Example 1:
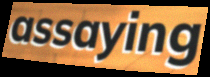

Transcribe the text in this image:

assaying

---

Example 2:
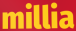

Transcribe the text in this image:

millia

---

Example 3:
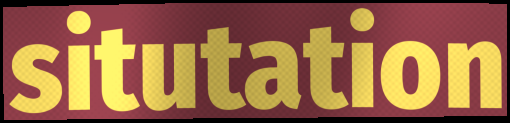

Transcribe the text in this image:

situtation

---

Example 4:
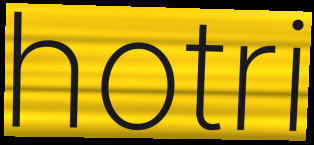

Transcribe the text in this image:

hotri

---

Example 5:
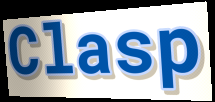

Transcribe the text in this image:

Clasp